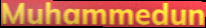
Muhammedun